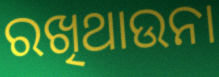
ରଖିଥାଉନା